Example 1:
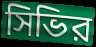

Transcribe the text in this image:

সিভির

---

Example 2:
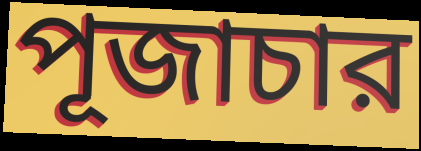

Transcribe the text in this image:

পূজাচার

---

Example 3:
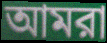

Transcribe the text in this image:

আমরা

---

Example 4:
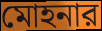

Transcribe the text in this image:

মোহনার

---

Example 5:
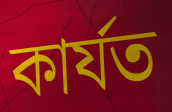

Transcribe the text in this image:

কার্যত